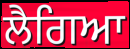
ਲੈਗਿਆ